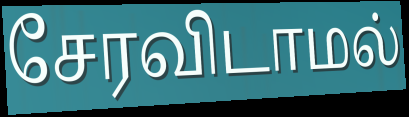
சேரவிடாமல்